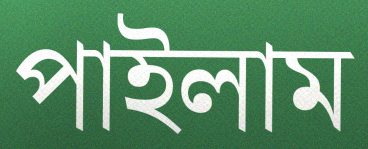
পাইলাম